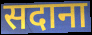
सदाना